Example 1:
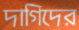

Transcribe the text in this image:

দাগিদের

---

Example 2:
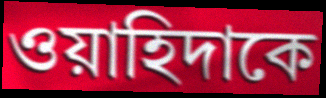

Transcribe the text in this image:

ওয়াহিদাকে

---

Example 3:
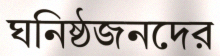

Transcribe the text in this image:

ঘনিষ্ঠজনদের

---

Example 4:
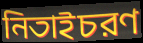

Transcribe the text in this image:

নিতাইচরণ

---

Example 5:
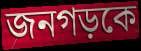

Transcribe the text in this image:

জনগড়কে